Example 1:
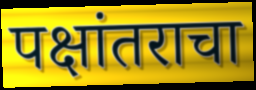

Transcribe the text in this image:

पक्षांतराचा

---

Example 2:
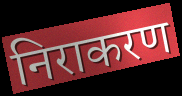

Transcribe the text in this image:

निराकरण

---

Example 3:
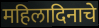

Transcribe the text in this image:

महिलादिनाचे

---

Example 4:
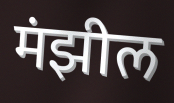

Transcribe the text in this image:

मंझील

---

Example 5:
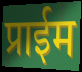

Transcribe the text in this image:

प्राईम